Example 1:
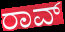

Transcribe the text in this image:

ರಾವ್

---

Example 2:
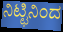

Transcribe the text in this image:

ನಿಟ್ಟಿನಿಂದ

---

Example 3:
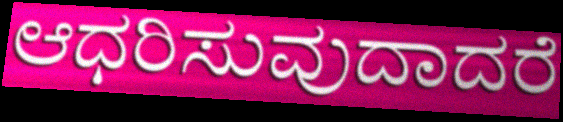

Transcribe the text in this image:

ಆಧರಿಸುವುದಾದರೆ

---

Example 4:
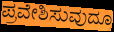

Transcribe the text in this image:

ಪ್ರವೇಶಿಸುವುದೂ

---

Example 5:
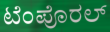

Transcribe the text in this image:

ಟೆಂಪೊರಲ್